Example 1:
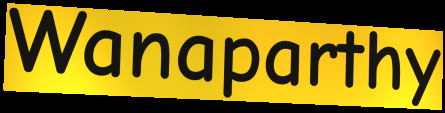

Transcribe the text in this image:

Wanaparthy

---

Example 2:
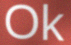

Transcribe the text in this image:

Ok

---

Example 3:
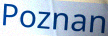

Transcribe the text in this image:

Poznan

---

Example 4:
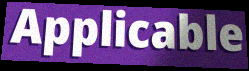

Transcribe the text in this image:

Applicable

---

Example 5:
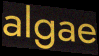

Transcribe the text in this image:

algae